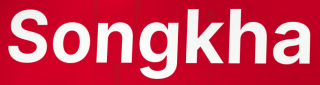
Songkha